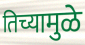
तिच्यामुळे